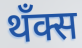
थँक्स